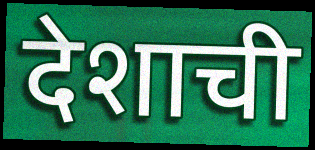
देशाची